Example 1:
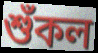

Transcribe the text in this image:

শুঁকল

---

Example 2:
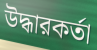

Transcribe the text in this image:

উদ্ধারকর্তা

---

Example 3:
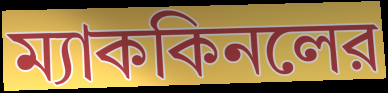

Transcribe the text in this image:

ম্যাককিনলের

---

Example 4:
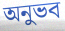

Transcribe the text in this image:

অনুভব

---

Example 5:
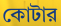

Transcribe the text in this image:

কোটার